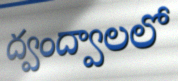
ద్వంద్వాలలో